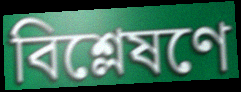
বিশ্লেষণে